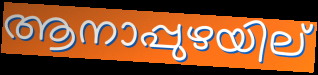
ആനാപ്പുഴയില്